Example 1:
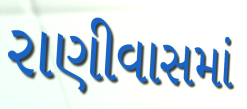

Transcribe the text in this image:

રાણીવાસમાં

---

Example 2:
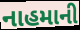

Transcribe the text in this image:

નાહમાની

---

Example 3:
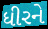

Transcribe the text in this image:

ધીરને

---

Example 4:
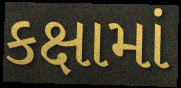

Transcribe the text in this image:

કક્ષામાં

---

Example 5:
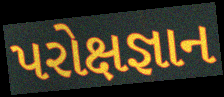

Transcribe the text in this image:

પરોક્ષજ્ઞાન